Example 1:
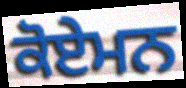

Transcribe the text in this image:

ਕੋਏਮਨ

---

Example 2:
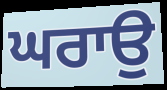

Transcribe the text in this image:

ਘਰਾਉ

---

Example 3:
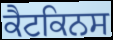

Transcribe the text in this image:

ਕੈਟਕਿਨਸ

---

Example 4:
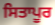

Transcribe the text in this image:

ਸਿਤਾਪੂਰ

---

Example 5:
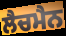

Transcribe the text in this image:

ਲੈਚਮੈਨ